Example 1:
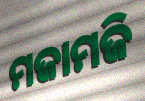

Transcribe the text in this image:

ମଜାମଜି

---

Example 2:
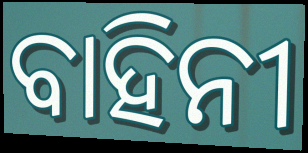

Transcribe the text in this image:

ବାହିନୀ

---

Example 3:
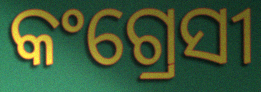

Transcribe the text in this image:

କଂଗ୍ରେସୀ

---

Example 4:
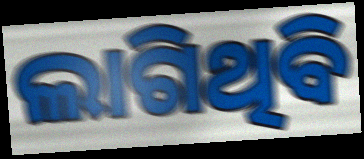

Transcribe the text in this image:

ଲାଗିଥିବି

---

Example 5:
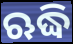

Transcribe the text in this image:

ଋଦ୍ଧି